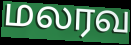
மலரவ